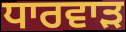
ਧਾਰਵਾੜ